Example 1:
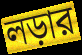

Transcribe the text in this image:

লড়ার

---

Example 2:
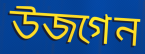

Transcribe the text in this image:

উজগেন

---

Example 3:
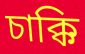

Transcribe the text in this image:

চাক্কি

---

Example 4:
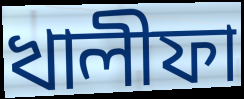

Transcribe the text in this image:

খালীফা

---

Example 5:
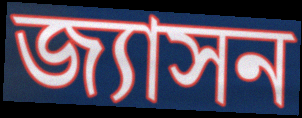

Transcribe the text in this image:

জ্যাসন